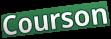
Courson